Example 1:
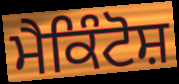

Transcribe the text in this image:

ਮੈਕਿੰਟੋਸ਼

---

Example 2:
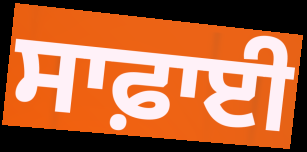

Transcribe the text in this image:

ਸਾਫ਼ਾਈ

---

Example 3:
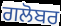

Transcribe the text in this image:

ਗਲੋਬਰ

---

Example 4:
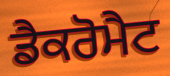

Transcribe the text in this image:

ਡੈਕਰੋਮੈਟ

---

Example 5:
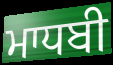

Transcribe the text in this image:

ਮਾਧਬੀ